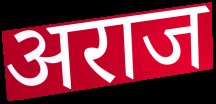
अराज